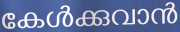
കേൾക്കുവാൻ